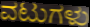
ವಟುಗಳು